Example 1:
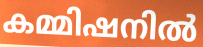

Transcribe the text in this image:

കമ്മിഷനിൽ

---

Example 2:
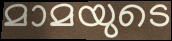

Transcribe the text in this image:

മാമയുടെ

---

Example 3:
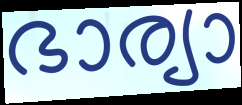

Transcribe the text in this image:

ഭാര്യാ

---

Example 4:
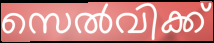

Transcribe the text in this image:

സെൽവിക്ക്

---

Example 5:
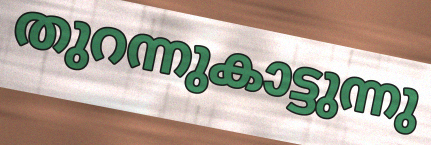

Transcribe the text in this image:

തുറന്നുകാട്ടുന്നു